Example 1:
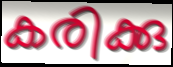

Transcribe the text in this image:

കരിക്കു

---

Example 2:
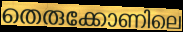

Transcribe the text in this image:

തെരുക്കോണിലെ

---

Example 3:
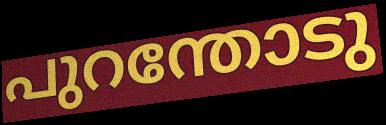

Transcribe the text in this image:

പുറന്തോടു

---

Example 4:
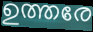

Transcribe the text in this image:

ഉത്തരേ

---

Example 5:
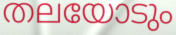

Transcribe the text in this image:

തലയോടും